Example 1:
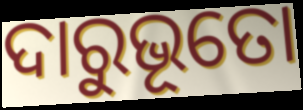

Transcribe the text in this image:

ଦାରୁଭୂତୋ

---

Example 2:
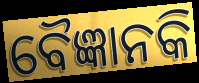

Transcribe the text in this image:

ବୈଜ୍ଞାନକି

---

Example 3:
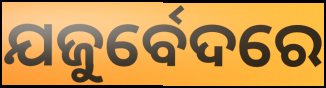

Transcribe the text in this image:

ଯଜୁର୍ବେଦରେ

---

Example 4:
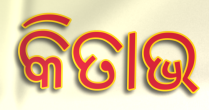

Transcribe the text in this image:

କିତାଭ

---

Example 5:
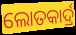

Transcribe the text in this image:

ଲୋତକାର୍ଦ୍ର